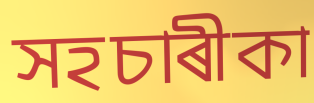
সহচাৰীকা